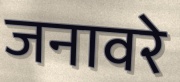
जनावरे